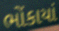
ભોંકાયાં